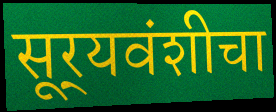
सूर्यवंशीचा